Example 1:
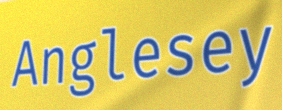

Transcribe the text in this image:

Anglesey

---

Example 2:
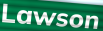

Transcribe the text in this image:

Lawson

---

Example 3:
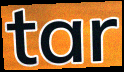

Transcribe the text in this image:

tar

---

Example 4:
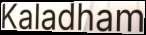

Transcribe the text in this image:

Kaladham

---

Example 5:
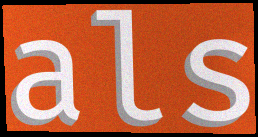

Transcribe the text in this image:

als